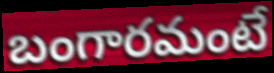
బంగారమంటే